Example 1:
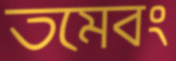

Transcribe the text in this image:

তমেবং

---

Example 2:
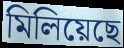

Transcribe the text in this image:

মিলিয়েছে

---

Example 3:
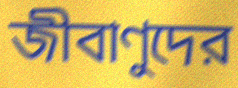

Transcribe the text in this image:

জীবাণুদের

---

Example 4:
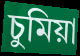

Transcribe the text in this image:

চুমিয়া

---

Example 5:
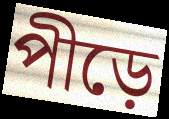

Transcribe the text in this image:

পীড়ে